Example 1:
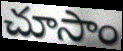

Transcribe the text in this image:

చూసాం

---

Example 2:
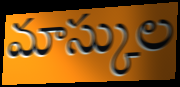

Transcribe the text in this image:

మాస్కుల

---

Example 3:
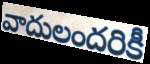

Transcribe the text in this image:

వాదులందరికీ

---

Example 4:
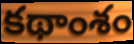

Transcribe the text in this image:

కథాంశం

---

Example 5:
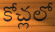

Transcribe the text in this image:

కోచ్లలో